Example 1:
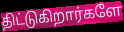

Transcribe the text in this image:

திட்டுகிறார்களே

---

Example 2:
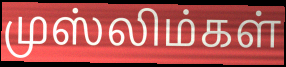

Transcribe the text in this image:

முஸ்லிம்கள்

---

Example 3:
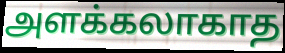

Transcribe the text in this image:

அளக்கலாகாத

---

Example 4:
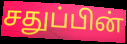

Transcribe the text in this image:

சதுப்பின்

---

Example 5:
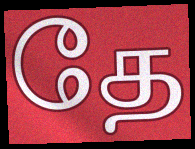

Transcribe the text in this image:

தே